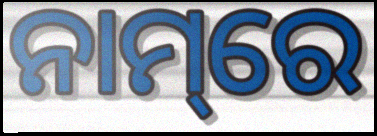
ନାମ୍‌ରେ